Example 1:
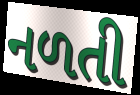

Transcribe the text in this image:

નળતી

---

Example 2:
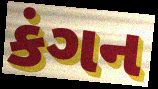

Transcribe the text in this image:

કંગન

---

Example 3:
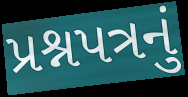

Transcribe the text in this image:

પ્રશ્નપત્રનું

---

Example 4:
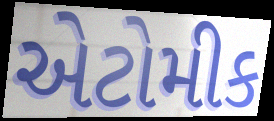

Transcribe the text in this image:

એટોમીક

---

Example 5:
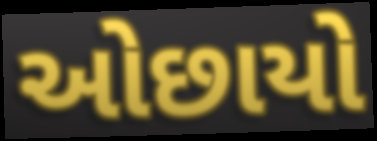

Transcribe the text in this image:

ઓછાયો